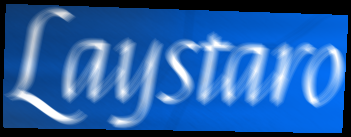
Laystaro